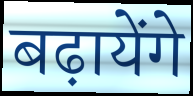
बढ़ायेंगे